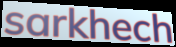
sarkhech